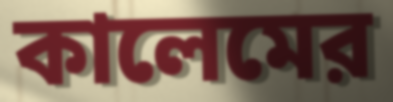
কালেমের